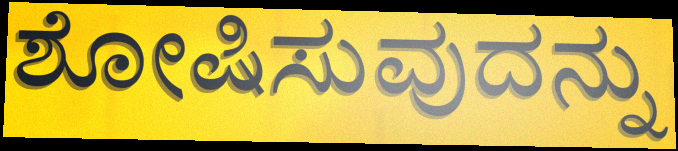
ಶೋಷಿಸುವುದನ್ನು